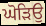
ਘੋੜਿਉ